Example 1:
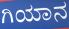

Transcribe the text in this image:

ಗಿಯಾನ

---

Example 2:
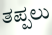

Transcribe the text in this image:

ತಪ್ಪಲು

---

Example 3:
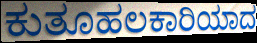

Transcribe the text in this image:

ಕುತೂಹಲಕಾರಿಯಾದ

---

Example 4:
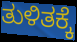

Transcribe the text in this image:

ತುಳಿತಕ್ಕೆ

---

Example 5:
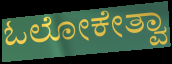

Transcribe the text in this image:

ಓಲೋಕೇತ್ವಾ